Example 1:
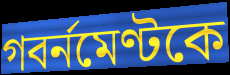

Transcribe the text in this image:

গবর্নমেণ্টকে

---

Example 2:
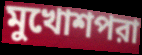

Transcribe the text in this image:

মুখোশপরা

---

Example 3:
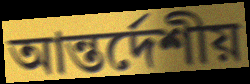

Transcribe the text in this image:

আন্তর্দেশীয়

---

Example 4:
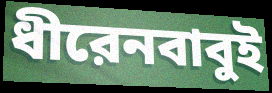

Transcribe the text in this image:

ধীরেনবাবুই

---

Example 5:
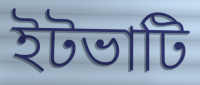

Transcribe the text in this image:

ইটভাটি